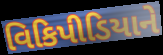
વિકિપીડિયાને